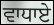
ਵਾਧਾਏ